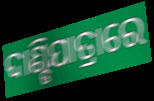
ଦାଣ୍ଡିଯାତ୍ରାରେ